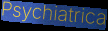
Psychiatrica